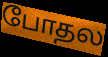
போதல